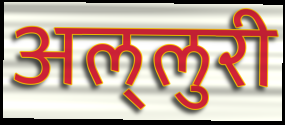
अल्लुरी